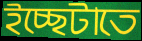
ইচ্ছেটাতে